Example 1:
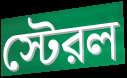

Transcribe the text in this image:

স্টেরল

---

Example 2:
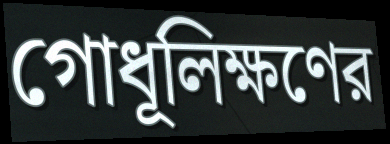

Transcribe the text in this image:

গোধূলিক্ষণের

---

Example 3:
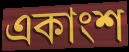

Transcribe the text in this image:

একাংশ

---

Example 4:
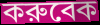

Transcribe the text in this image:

করুবেক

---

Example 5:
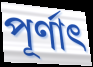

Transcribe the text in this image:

পূর্ণাৎ